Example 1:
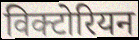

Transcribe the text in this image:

विक्टोरियन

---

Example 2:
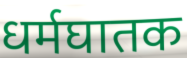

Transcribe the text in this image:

धर्मघातक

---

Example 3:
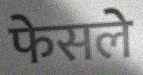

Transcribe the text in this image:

फेसले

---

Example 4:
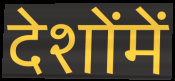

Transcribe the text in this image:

देशोंमें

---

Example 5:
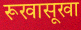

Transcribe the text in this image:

रूखासूखा